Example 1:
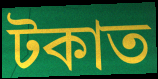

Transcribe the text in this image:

টকাত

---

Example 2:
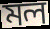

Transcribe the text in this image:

মল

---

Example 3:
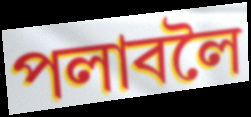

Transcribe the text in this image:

পলাবলৈ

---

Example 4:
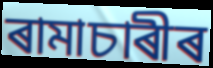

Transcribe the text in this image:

ৰামাচাৰীৰ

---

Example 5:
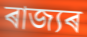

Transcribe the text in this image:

ৰাজ্যৰ